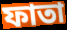
ফাতা